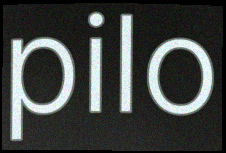
pilo